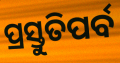
ପ୍ରସ୍ତୁତିପର୍ବ